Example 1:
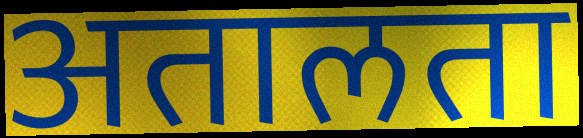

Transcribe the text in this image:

अतालता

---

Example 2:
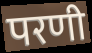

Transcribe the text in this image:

परणी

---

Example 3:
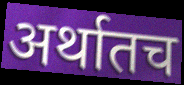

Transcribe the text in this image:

अर्थातच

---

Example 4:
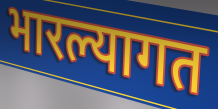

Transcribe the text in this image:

भारल्यागत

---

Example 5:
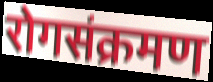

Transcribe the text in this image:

रोगसंक्रमण